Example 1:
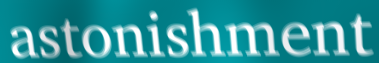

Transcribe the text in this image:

astonishment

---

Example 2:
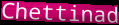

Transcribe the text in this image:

Chettinad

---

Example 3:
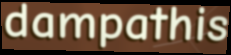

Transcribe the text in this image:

dampathis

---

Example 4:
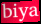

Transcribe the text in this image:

biya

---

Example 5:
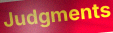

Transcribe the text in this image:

Judgments